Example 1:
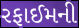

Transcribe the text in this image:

રફાઈમની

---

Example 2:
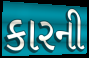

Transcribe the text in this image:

કારની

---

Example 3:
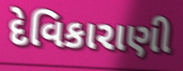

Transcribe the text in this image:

દેવિકારાણી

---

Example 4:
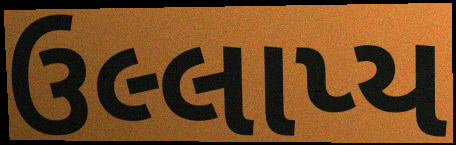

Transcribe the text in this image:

ઉલ્લાપ્ય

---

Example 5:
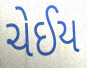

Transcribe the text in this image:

ચેઈય